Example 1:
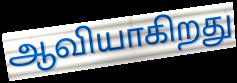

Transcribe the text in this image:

ஆவியாகிறது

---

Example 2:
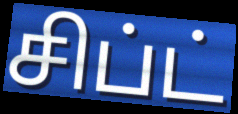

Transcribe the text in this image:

சிப்ட்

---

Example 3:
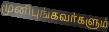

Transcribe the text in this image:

முனிபுங்கவர்களும்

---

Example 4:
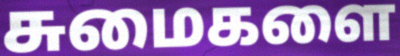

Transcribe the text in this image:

சுமைகளை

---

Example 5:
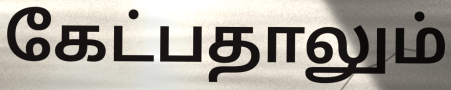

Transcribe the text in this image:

கேட்பதாலும்